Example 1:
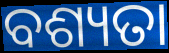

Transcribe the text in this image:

ବଶ୍ୟତା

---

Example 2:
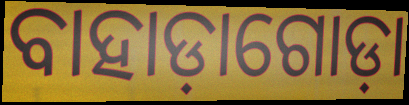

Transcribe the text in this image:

ବାହାଡ଼ାଗୋଡ଼ା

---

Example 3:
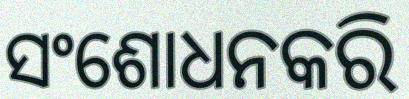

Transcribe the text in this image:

ସଂଶୋଧନକରି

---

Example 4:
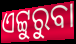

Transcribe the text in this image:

ଏଟ୍ଟୁରୁବା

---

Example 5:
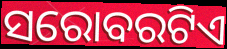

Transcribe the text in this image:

ସରୋବରଟିଏ